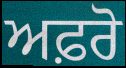
ਅਫ਼ਰੋ